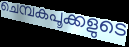
ചെമ്പകപൂക്കളുടെ